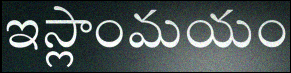
ఇస్లాంమయం